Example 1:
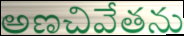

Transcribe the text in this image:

అణచివేతను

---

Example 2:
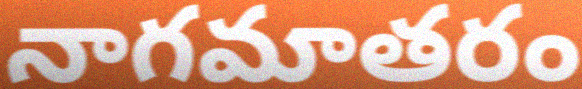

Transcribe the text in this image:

నాగమాతరం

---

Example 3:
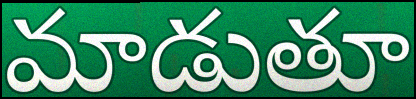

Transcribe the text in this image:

మాడుతూ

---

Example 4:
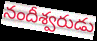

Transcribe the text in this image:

నందీశ్వరుడు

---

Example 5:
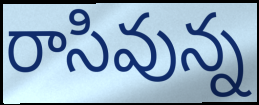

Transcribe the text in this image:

రాసివున్న